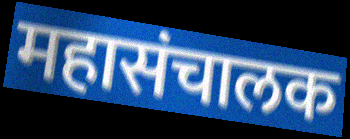
महासंचालक